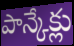
పాన్కేక్లు